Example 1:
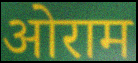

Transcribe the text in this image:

ओराम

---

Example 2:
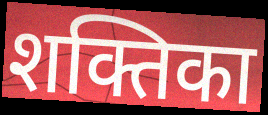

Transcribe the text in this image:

शक्तिका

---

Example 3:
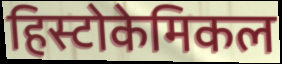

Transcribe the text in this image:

हिस्टोकेमिकल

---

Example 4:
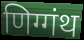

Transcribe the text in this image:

णिग्गंथ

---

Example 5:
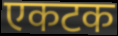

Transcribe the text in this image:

एकटक